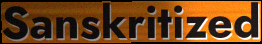
Sanskritized